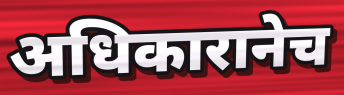
अधिकारानेच